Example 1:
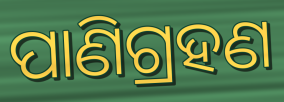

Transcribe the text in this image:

ପାଣିଗ୍ରହଣ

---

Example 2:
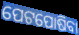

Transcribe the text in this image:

ପେଟପୋଷିବା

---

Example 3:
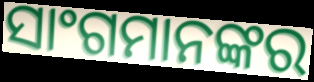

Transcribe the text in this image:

ସାଂଗମାନଙ୍କର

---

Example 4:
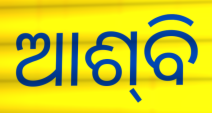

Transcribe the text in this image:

ଆଶ୍‍ବି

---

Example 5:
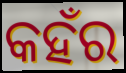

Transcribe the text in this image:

କହଁର